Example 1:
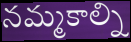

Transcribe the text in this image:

నమ్మకాల్ని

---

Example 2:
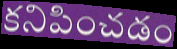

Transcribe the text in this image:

కనిపించడం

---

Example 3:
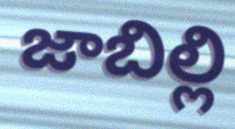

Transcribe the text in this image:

జాబిల్లి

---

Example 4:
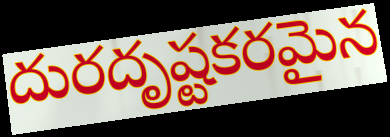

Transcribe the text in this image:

దురదృష్టకరమైన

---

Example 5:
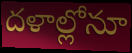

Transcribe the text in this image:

దళాల్లోనూ